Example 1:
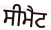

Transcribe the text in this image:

ਸੀਮੈਟ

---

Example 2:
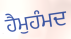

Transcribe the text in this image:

ਹੈਮੁਹੰਮਦ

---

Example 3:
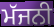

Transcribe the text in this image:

ਮੱਜਨੀ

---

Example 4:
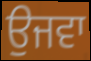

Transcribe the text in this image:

ਉਜਵਾ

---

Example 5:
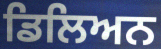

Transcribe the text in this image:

ਡਿਲਿਅਨ